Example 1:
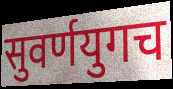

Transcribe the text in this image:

सुवर्णयुगच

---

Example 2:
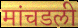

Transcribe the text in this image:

मांचडली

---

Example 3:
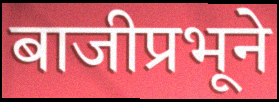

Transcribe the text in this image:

बाजीप्रभूने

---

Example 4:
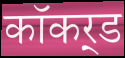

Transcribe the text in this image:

कॉकर्ड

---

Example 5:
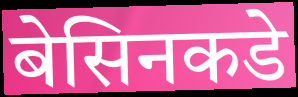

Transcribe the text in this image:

बेसिनकडे